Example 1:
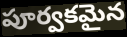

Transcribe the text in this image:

పూర్వకమైన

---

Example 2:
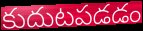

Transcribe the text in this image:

కుదుటపడడం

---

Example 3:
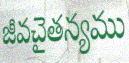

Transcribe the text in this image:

జీవచైతన్యము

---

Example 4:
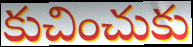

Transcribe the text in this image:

కుచించుకు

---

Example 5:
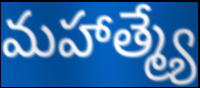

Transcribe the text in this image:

మహాత్మ్యే